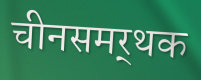
चीनसमर्थक